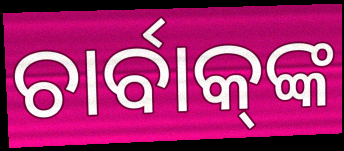
ଚାର୍ବାକ୍‌ଙ୍କ